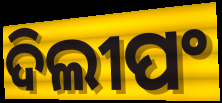
ଦିଲୀପଂ